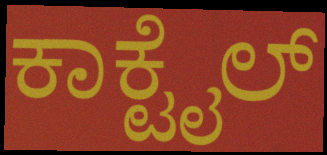
ಕಾಕ್ಟೈಲ್